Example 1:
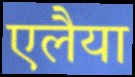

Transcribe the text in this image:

एलैया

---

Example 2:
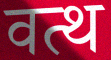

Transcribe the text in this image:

वत्थ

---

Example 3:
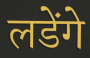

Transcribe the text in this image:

लडेंगे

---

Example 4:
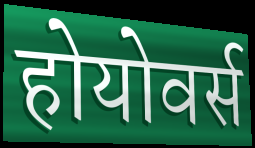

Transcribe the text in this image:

होयोवर्स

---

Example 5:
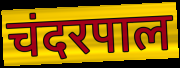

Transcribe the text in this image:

चंदरपाल